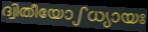
ദ്വിതീയോഽധ്യായഃ